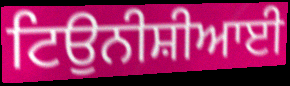
ਟਿਉਨੀਸ਼ੀਆਈ